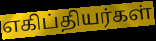
எகிப்தியர்கள்